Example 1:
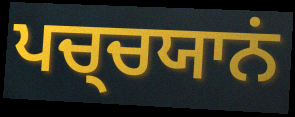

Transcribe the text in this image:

ਪਚ੍ਚਯਾਨਂ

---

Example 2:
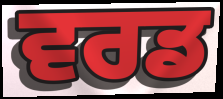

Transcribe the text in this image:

ਵਰਡ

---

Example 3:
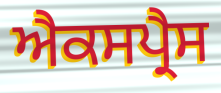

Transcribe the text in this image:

ਐਕਸਪ੍ਰੈਸ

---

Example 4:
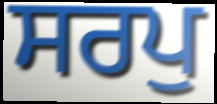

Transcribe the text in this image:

ਸਰਪੁ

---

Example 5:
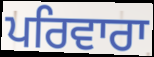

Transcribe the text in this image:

ਪਰਿਵਾਰਾ